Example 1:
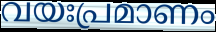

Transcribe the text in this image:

വയഃപ്രമാണം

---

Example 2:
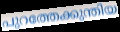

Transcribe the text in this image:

പുറത്തേക്കുന്തിയ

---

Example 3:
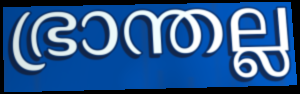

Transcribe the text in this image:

ഭ്രാന്തല്ല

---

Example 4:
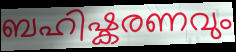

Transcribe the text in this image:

ബഹിഷ്കരണവും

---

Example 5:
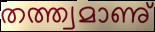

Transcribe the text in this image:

തത്ത്വമാണു്